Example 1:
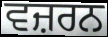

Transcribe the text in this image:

ਵਜ਼ਰਨ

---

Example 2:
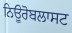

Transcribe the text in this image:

ਨਿਊਰੋਬਲਾਸਟ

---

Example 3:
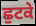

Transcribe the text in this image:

ਛੁਟਕੇ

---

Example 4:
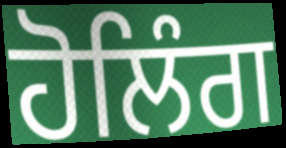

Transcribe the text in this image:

ਹੋਲਿੰਗ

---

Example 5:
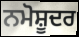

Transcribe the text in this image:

ਨਮੋਸ਼ੂਦਰ